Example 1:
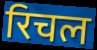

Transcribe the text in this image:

रिचल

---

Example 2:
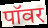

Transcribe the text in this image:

पॉवर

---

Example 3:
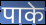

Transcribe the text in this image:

पाके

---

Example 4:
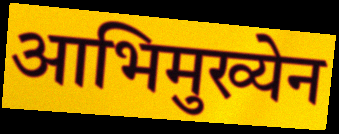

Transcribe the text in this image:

आभिमुख्येन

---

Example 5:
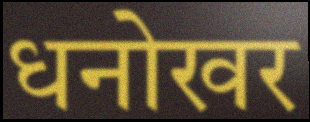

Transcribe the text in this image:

धनोखर